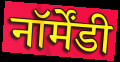
नॉर्मेंडी